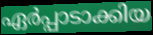
ഏർപ്പാടാക്കിയ